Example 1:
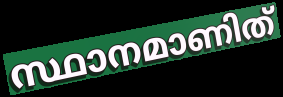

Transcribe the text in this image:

സ്ഥാനമാണിത്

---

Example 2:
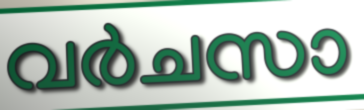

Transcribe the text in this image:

വർചസാ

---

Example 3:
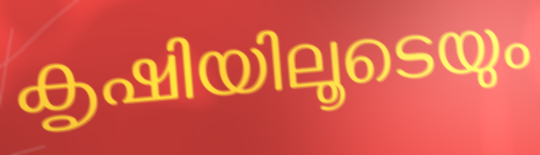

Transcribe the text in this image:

കൃഷിയിലൂടെയും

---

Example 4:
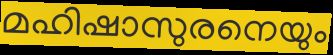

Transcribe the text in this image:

മഹിഷാസുരനെയും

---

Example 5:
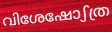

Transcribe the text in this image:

വിശേഷോഽത്ര